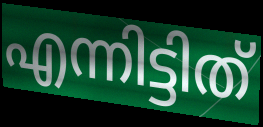
എന്നിട്ടിത്